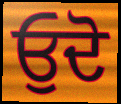
ਓੁਦੋ